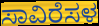
ಸಾವಿರೆಸಳ